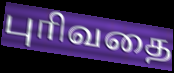
புரிவதை